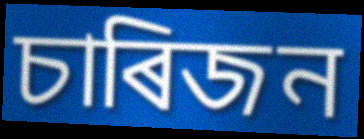
চাৰিজন